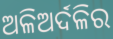
ଅଳିଅର୍ଦଳିର